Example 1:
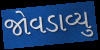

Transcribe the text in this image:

જોવડાવ્યુ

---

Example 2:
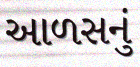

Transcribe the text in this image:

આળસનું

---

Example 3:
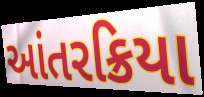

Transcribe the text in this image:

આંતરક્રિયા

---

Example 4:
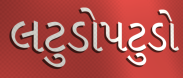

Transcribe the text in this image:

લટુડોપટુડો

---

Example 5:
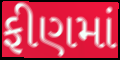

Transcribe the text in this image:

ફીણમાં